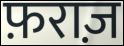
फ़राज़